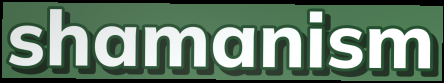
shamanism